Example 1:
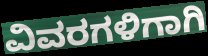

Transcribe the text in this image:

ವಿವರಗಳಿಗಾಗಿ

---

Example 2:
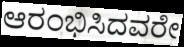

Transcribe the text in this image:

ಆರಂಭಿಸಿದವರೇ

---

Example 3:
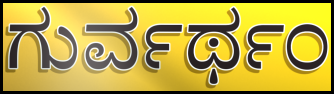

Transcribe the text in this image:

ಗುರ್ವರ್ಥಂ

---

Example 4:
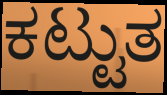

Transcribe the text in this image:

ಕಟ್ಟುತ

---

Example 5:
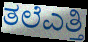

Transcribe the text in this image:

ತಲೆಎತ್ತಿ